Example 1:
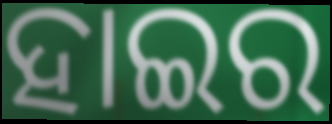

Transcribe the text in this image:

ହାଇର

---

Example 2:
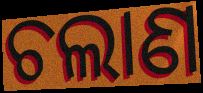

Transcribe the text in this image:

ଚଲାଣ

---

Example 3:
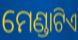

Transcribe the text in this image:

ମେଣ୍ଡାଟିଏ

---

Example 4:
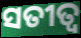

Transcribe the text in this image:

ସତୀତ୍ଵ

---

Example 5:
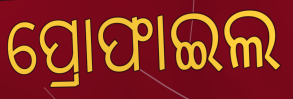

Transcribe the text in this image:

ପ୍ରୋଫାଇଲ